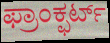
ಫ್ರಾಂಕ್ಫರ್ಟ್